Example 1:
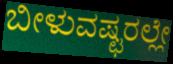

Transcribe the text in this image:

ಬೀಳುವಷ್ಟರಲ್ಲೇ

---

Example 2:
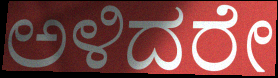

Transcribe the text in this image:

ಅಳಿದರೇ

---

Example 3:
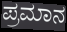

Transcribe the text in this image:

ಪ್ರಮಾನ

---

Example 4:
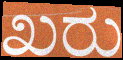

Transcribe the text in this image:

ಖರು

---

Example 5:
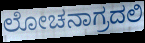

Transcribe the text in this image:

ಲೋಚನಾಗ್ರದಲಿ